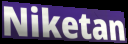
Niketan